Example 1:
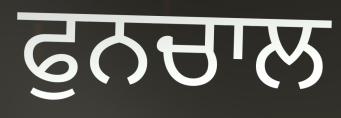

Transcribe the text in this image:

ਫੁਨਚਾਲ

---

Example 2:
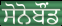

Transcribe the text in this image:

ਸੋਨੋਬੌਂਡ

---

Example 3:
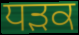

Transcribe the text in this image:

ਧੜਕ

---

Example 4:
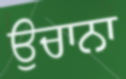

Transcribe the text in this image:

ਉਚਾਨਾ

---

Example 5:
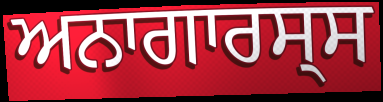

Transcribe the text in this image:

ਅਨਾਗਾਰਸ੍ਸ